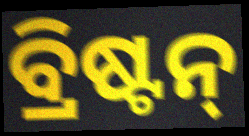
ବ୍ରିଷ୍ଟନ୍